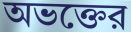
অভক্তের